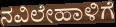
ನವಿಲೇಹಾಳಿಗೆ